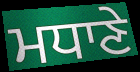
ਮਧਾਣੇ